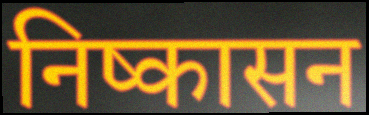
निष्कासन